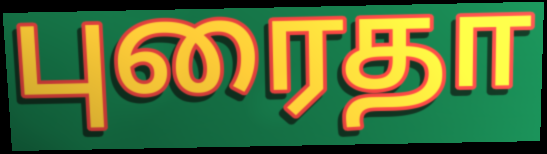
புரைதா